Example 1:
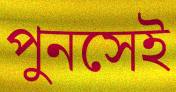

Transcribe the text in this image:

পুনসেই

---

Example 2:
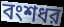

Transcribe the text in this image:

বংশধর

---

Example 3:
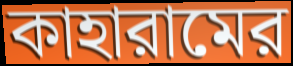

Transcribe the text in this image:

কাহারামের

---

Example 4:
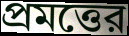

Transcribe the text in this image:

প্রমত্তের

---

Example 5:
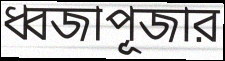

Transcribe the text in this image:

ধ্বজাপূজার